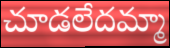
చూడలేదమ్మా